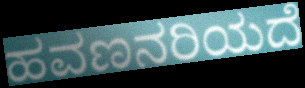
ಹವಣನರಿಯದೆ